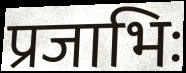
प्रजाभिः